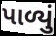
પાળ્યું